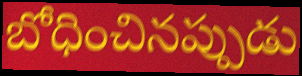
బోధించినప్పుడు